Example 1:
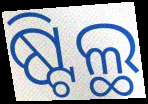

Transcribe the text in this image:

ଷ୍ଟିଲ୍ଥ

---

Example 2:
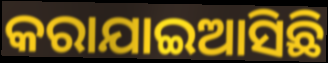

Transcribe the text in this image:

କରାଯାଇଆସିଛି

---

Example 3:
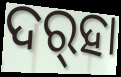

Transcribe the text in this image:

ଦର୍‌ହା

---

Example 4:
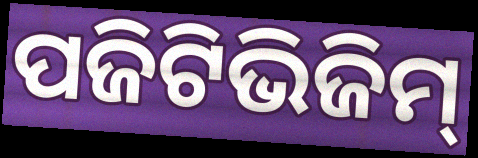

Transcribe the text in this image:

ପଜିଟିଭିଜିମ୍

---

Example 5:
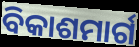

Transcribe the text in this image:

ବିକାଶମାର୍ଗ